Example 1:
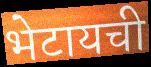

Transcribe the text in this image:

भेटायची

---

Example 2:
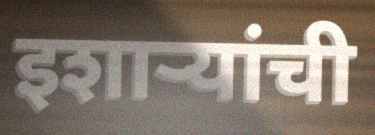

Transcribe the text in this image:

इशाऱ्यांची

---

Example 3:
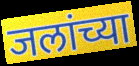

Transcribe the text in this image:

जलांच्या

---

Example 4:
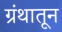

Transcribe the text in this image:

ग्रंथातून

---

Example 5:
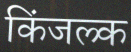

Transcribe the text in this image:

किंजल्क